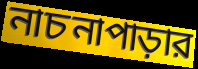
নাচনাপাড়ার